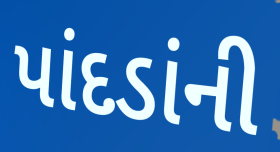
પાંદડાંની